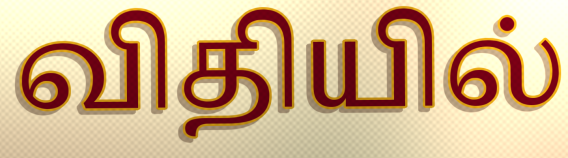
விதியில்